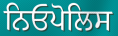
ਨਿਓਪੋਲਿਸ